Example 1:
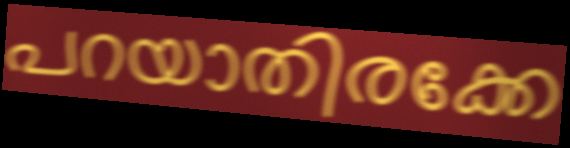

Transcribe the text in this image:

പറയാതിരക്കേ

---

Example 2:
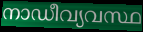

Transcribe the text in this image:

നാഡീവ്യവസ്ഥ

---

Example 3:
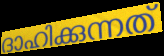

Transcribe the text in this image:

ദാഹിക്കുന്നത്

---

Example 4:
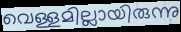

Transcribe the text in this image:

വെള്ളമില്ലായിരുന്നു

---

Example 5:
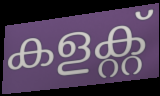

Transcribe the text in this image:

കളക്റ്റ്